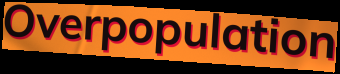
Overpopulation